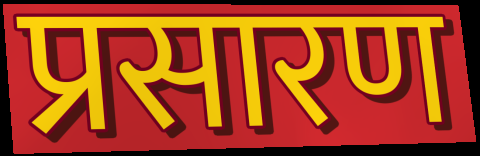
प्रसारण